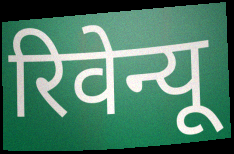
रिवेन्यू